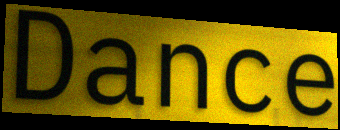
Dance